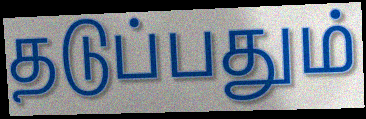
தடுப்பதும்